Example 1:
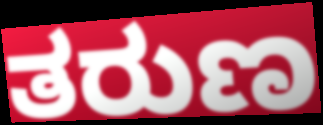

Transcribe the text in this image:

ತರುಣ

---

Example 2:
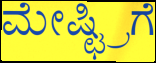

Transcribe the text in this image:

ಮೇಷ್ಟ್ರಿಗೆ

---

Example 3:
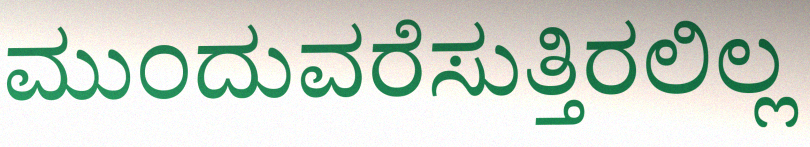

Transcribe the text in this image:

ಮುಂದುವರೆಸುತ್ತಿರಲಿಲ್ಲ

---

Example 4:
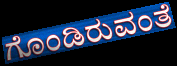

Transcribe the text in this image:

ಗೊಂಡಿರುವಂತೆ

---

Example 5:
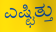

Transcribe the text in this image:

ಎಷ್ಟಿತ್ತು